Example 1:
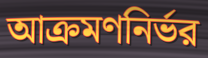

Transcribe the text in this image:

আক্রমণনির্ভর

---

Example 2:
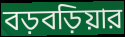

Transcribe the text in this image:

বড়বড়িয়ার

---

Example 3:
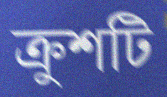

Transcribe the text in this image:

ক্রুশটি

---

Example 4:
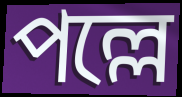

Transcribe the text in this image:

পল্লে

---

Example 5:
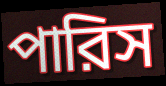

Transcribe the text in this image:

পারিস